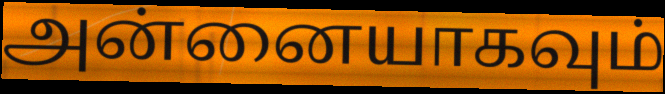
அன்னையாகவும்